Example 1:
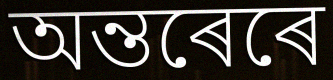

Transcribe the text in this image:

অন্তৰেৰে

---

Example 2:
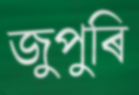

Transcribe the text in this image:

জুপুৰি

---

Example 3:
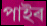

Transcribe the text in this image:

পাইৰ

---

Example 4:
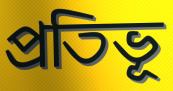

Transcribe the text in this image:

প্ৰতিভূ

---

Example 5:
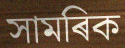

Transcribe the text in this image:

সামৰিক